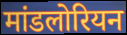
मांडलोरियन